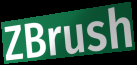
ZBrush